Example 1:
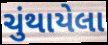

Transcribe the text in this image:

ચુંથાયેલા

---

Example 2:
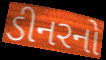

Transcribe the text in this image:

ડીનરનો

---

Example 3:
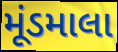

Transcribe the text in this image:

મૂંડમાલા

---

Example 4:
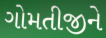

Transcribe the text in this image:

ગોમતીજીને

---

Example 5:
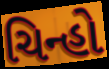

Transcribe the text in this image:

ચિન્હો